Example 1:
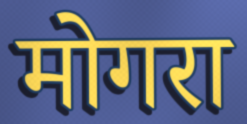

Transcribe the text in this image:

मोगरा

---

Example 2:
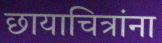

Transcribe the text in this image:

छायाचित्रांना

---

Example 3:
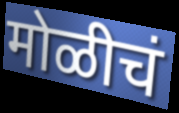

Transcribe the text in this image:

मोळीचं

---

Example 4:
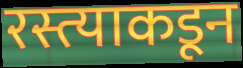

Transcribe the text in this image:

रस्त्याकडून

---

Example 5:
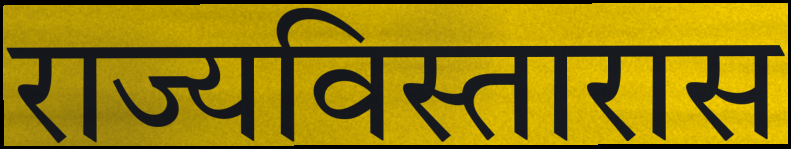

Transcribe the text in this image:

राज्यविस्तारास